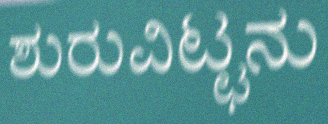
ಶುರುವಿಟ್ಟನು